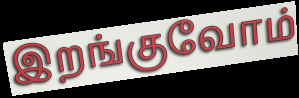
இறங்குவோம்